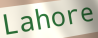
Lahore